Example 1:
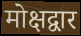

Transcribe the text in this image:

मोक्षद्वार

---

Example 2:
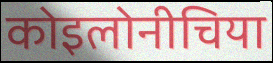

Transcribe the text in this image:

कोइलोनीचिया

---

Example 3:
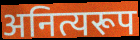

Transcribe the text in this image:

अनित्यरूप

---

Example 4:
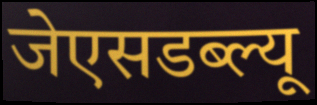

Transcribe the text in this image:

जेएसडब्ल्यू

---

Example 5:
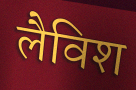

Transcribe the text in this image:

लैविश